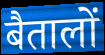
बैतालों